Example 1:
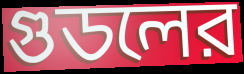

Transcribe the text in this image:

গুডলের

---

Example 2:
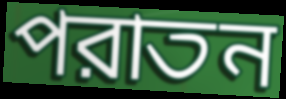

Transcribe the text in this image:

পরাতন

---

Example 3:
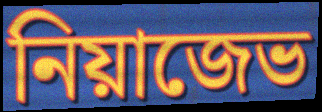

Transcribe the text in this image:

নিয়াজেভ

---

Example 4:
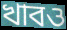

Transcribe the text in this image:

খাবও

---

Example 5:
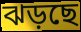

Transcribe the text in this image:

ঝড়ছে